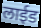
लाईड